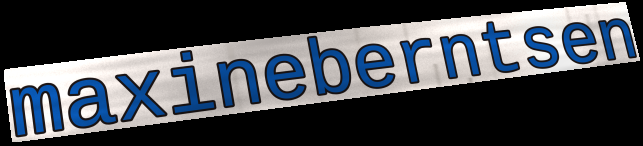
maxineberntsen